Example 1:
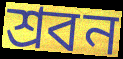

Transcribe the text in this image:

শ্ৰবন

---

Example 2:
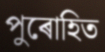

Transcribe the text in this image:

পুৰোহিত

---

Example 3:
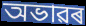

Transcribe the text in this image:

অভাৱৰ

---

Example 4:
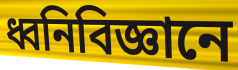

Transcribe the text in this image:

ধ্বনিবিজ্ঞানে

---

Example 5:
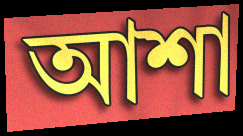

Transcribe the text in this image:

আশা